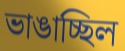
ভাঙাচ্ছিল